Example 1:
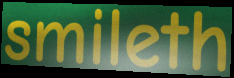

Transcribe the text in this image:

smileth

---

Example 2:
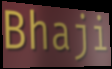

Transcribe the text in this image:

Bhaji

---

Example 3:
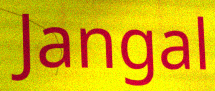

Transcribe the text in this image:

Jangal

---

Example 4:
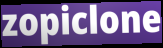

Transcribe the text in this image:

zopiclone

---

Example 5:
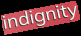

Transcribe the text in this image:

indignity